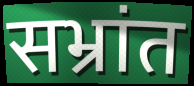
सभ्रांत